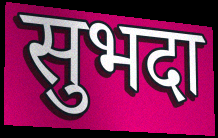
सुभदा